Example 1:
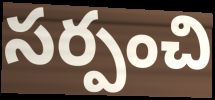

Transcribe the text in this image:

సర్పంచి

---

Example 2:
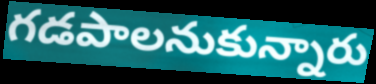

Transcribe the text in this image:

గడపాలనుకున్నారు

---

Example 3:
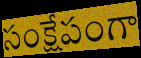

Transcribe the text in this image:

సంక్షేపంగా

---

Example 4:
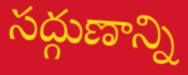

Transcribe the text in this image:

సద్గుణాన్ని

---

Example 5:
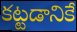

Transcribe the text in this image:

కట్టడానికే